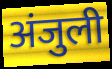
अंजुली